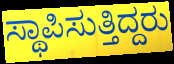
ಸ್ಥಾಪಿಸುತ್ತಿದ್ದರು